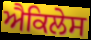
ਐਕਿਲੇਸ